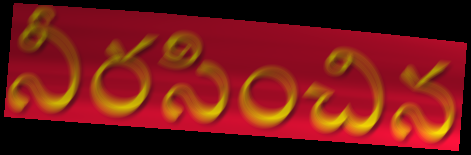
నీరసించిన